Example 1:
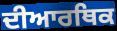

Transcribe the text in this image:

ਦੀਆਰਥਿਕ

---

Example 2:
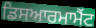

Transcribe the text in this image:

ਡਿਸਆਰਮਾਮੈਂਟ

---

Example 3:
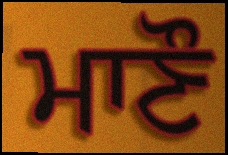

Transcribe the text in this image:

ਮਾਣੌ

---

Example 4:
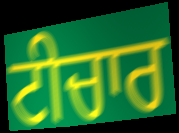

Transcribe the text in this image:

ਟੀਚਾਰ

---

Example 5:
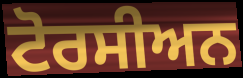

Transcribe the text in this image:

ਟੋਰਸੀਅਨ